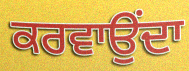
ਕਰਵਾਉਂਦਾ